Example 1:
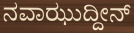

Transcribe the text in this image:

ನವಾಝುದ್ದೀನ್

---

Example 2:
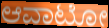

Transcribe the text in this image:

ಆವಾಟೋ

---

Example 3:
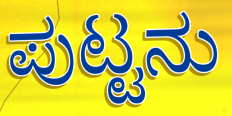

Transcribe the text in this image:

ಪುಟ್ಟನು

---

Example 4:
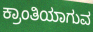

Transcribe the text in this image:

ಕ್ರಾಂತಿಯಾಗುವ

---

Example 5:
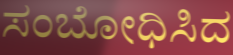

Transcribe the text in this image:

ಸಂಬೋಧಿಸಿದ